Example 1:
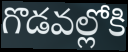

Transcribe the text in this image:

గొడవల్లోకి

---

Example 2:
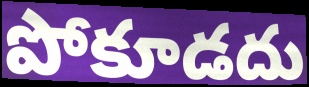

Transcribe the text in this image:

పోకూడదు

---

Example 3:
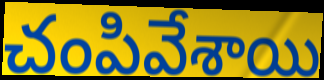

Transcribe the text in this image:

చంపివేశాయి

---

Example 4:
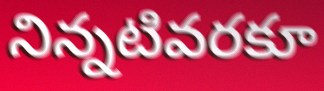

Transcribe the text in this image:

నిన్నటివరకూ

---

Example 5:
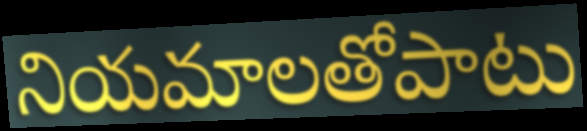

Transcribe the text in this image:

నియమాలతోపాటు